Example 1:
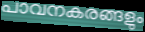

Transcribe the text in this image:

പാവനകരങ്ങളും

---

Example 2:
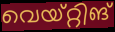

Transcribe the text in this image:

വെയ്റ്റിങ്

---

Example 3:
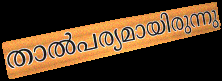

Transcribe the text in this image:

താൽപര്യമായിരുന്നു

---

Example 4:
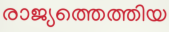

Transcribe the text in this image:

രാജ്യത്തെത്തിയ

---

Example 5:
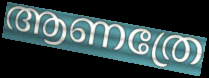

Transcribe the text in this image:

ആണത്രേ